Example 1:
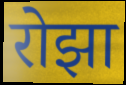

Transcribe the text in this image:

रोझा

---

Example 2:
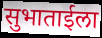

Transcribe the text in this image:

सुभाताईला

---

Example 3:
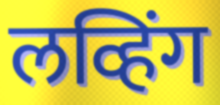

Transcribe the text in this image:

लव्हिंग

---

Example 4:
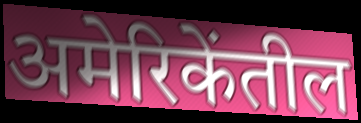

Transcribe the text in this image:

अमेरिकेंतील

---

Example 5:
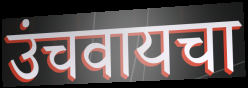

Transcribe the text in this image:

उंचवायचा